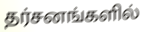
தர்சனங்களில்